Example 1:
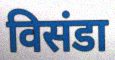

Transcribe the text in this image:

विसंडा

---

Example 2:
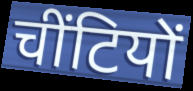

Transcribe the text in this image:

चींटियों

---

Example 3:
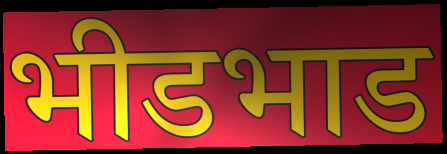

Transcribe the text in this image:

भीडभाड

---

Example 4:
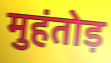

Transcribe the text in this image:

मुहंतोड़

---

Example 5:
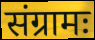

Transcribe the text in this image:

संग्रामः